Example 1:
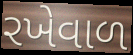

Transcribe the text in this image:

રખેવાળ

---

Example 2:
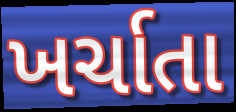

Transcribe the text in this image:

ખર્ચાતા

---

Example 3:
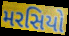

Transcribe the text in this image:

મરસિયો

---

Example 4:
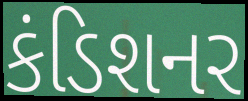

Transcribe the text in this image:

કંડિશનર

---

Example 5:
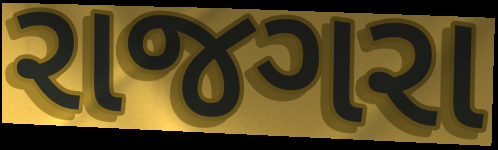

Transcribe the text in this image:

રાજગરા